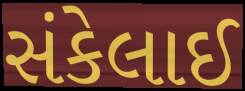
સંકેલાઈ